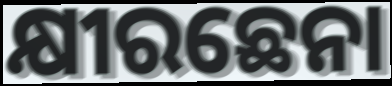
କ୍ଷୀରଛେନା